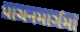
પાચનમાર્ગમાં